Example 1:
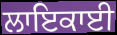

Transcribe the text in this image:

ਲਾਇਕਾਈ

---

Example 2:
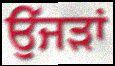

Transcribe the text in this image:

ਉੱਜੜਾਂ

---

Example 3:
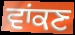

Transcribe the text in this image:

ਵਾਂਕਣ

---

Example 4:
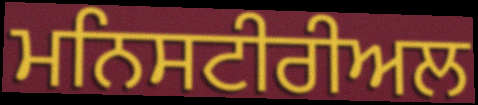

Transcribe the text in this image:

ਮਨਿਸਟੀਰੀਅਲ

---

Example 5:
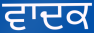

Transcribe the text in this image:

ਵਾਦਕ